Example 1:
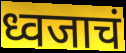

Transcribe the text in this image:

ध्वजाचं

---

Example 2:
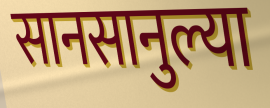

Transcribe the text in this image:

सानसानुल्या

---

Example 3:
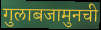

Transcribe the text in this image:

गुलाबजामुनची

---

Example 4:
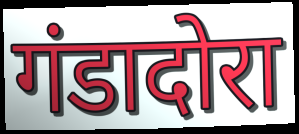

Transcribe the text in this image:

गंडादोरा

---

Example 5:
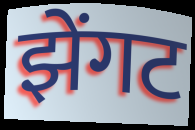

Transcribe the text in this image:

झेंगट